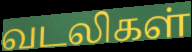
வடலிகள்